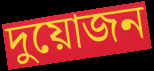
দুয়োজন